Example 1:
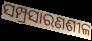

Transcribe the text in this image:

ସମ୍ପ୍ରସାରଣଶୀଳ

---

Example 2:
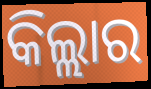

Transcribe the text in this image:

କିଲ୍ଲାର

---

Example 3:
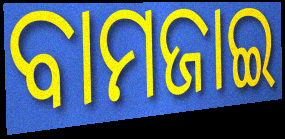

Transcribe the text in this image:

ବାମଜାଇ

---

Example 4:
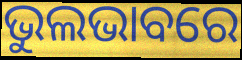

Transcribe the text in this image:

ଭୁଲଭାବରେ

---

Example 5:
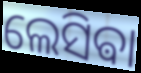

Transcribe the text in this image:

ଲେସିଵା